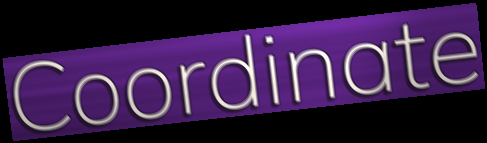
Coordinate